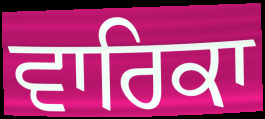
ਵਾਰਿਕਾ